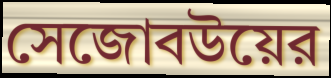
সেজোবউয়ের